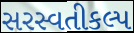
સરસ્વતીકલ્પ